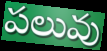
పలువు